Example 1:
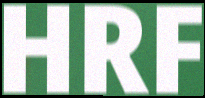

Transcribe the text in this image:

HRF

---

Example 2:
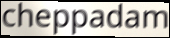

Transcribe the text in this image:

cheppadam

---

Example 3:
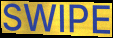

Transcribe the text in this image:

SWIPE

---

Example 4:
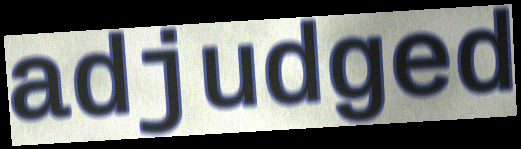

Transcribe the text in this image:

adjudged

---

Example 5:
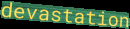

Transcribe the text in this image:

devastation